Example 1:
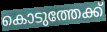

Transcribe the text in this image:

കൊടുത്തേക്ക്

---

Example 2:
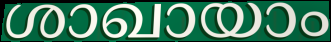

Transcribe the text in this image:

ശാഖായാം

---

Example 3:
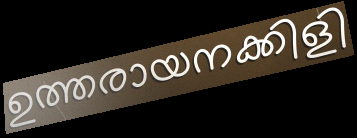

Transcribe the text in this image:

ഉത്തരായനക്കിളി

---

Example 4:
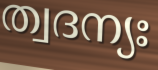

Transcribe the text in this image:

ത്വദന്യഃ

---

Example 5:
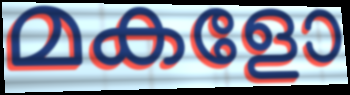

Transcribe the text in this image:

മകളോ